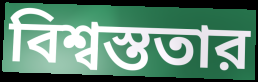
বিশ্বস্ততার